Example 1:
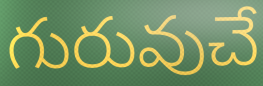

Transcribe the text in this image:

గురువుచే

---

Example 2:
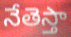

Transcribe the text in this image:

నేతెస్తా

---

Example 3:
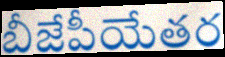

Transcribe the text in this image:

బీజేపీయేతర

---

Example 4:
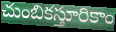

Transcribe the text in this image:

చుంబికస్తూరికాం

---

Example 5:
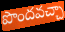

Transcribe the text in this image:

పొందవచ్చా